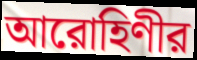
আরোহিণীর